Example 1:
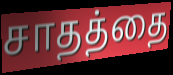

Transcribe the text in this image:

சாதத்தை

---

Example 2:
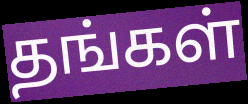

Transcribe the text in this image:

தங்கள்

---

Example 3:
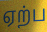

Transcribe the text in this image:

ஏற்ப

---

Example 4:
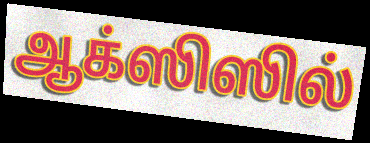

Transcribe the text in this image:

ஆக்ஸிஸில்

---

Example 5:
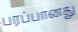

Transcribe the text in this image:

பரப்பானது